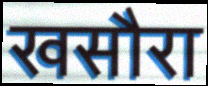
खसौरा